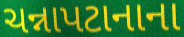
ચન્નાપટાનાના